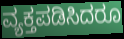
ವ್ಯಕ್ತಪಡಿಸಿದರೂ